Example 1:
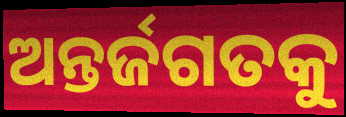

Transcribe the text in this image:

ଅନ୍ତର୍ଜଗତକୁ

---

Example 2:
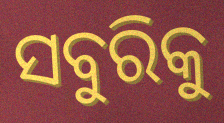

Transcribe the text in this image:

ସବୁରିକୁ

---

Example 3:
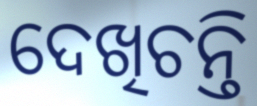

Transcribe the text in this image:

ଦେଖିଚନ୍ତି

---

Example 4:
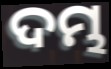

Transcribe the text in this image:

ଦମ୍ଭ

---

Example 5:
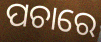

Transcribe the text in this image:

ପଚାରେ